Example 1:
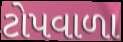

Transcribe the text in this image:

ટોપવાળા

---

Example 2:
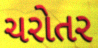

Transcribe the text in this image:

ચરોતર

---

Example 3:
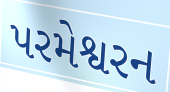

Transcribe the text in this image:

પરમેશ્વરન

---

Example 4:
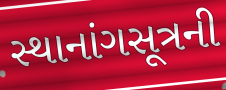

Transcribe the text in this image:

સ્થાનાંગસૂત્રની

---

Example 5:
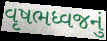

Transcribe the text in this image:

વૃષભધ્વજનું